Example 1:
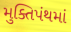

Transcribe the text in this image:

મુક્તિપંથમાં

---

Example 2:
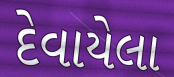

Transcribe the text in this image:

દેવાયેલા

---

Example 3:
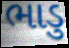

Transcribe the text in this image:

ભાડુ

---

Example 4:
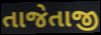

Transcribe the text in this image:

તાજેતાજી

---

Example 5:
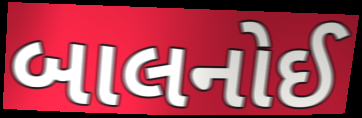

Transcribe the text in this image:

બાલનોઈ